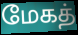
மேகத்